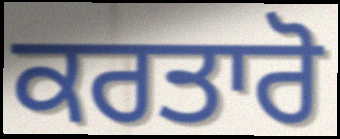
ਕਰਤਾਰੋ